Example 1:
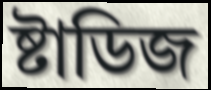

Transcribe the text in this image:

ষ্টাডিজ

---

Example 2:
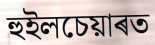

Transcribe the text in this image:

হুইলচেয়াৰত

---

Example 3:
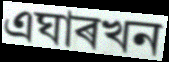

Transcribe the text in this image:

এঘাৰখন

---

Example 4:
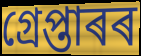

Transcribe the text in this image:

গ্ৰেপ্তাৰৰ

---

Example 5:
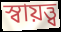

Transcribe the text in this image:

স্বায়ত্ত্ব